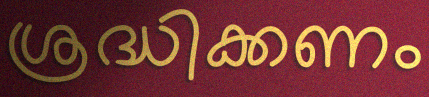
ശ്രദ്ധിക്കണം